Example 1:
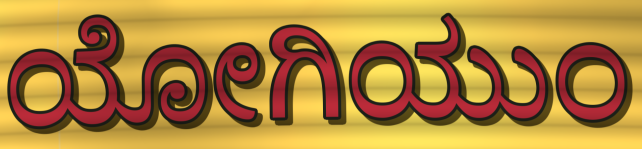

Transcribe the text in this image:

ಯೋಗಿಯುಂ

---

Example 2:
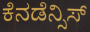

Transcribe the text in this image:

ಕೆನಡೆನ್ಸಿಸ್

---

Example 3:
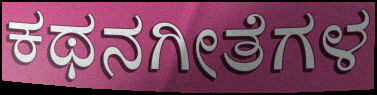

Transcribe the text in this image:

ಕಥನಗೀತೆಗಳ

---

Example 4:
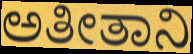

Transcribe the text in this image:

ಅತೀತಾನಿ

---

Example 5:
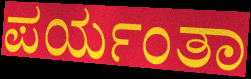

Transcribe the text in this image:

ಪರ್ಯಂತಾ